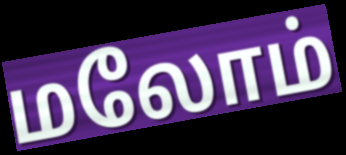
மலோம்